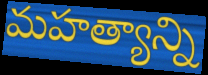
మహత్యాన్ని